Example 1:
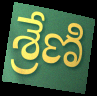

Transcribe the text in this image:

శ్రేణి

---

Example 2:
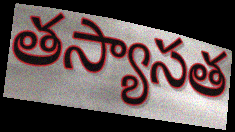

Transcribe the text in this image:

తస్యాసత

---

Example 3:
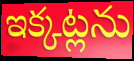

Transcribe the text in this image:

ఇక్కట్లను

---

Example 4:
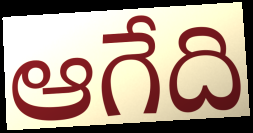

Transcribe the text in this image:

ఆగేది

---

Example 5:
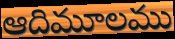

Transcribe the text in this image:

ఆదిమూలము